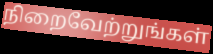
நிறைவேற்றுங்கள்